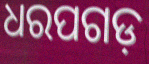
ଧରପଗଡ଼